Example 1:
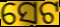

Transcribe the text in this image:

ସେଟ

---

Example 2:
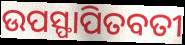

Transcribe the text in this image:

ଉପସ୍ଫାପିତବତୀ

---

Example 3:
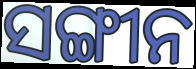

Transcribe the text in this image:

ସଙ୍ଗୀନ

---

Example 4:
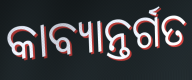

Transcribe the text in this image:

କାବ୍ଯାନ୍ତର୍ଗତ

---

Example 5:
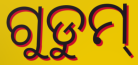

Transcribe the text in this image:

ଗୁଡୁମ୍